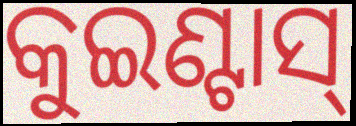
କୁଇଣ୍ଟାସ୍